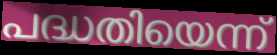
പദ്ധതിയെന്ന്